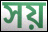
সয়